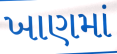
ખાણમાં